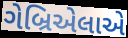
ગેબ્રિએલાએ